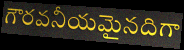
గౌరవనీయమైనదిగా